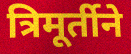
त्रिमूर्तीने